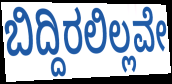
ಬಿದ್ದಿರಲಿಲ್ಲವೇ